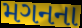
મગનના